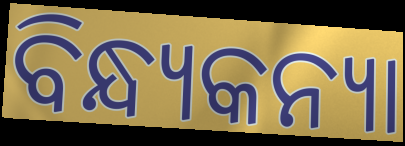
ବିନ୍ଧ୍ୟକନ୍ୟା